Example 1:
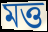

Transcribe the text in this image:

মত্ত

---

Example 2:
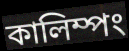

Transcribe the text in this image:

কালিম্পং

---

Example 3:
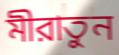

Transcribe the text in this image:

মীরাতুন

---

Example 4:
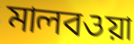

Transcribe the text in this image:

মালবওয়া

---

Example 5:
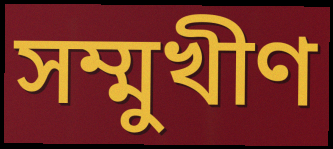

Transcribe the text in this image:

সম্মুখীণ